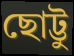
ছোট্টু